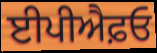
ਈਪੀਐਫ਼ਓ